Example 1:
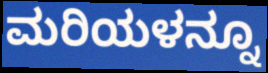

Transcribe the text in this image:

ಮರಿಯಳನ್ನೂ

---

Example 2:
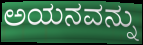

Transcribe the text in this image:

ಅಯನವನ್ನು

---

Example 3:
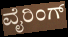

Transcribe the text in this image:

ವೈರಿಂಗ್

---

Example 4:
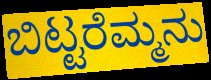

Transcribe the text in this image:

ಬಿಟ್ಟರೆಮ್ಮನು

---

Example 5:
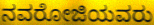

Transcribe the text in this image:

ನವರೋಜಿಯವರು